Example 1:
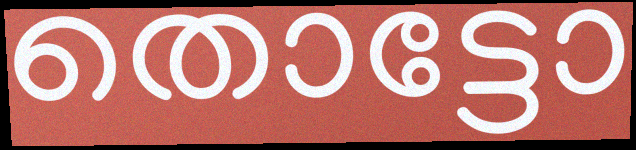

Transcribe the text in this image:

തൊട്ടോ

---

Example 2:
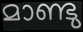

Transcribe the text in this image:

മാണ്ടു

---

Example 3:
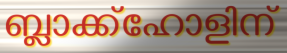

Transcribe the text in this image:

ബ്ലാക്ക്ഹോളിന്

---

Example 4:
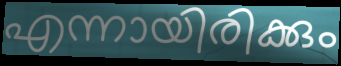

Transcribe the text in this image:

എന്നായിരിക്കും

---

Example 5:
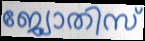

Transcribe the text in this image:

ജ്യോതിസ്